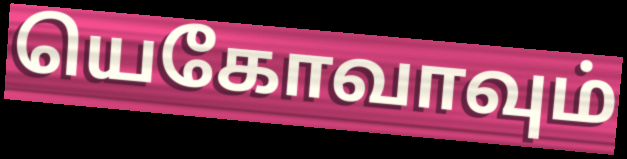
யெகோவாவும்